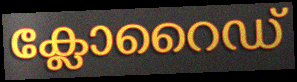
ക്ലോറൈഡ്